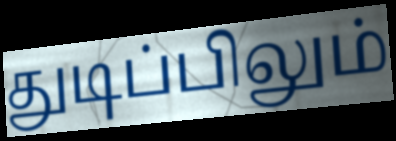
துடிப்பிலும்